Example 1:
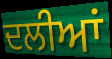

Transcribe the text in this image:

ਦਲੀਆਂ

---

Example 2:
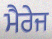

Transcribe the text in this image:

ਮੈਰੇਜ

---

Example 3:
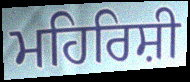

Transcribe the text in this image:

ਮਹਿਰਿਸ਼ੀ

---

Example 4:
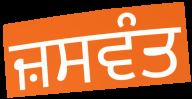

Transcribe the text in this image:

ਜ਼ਸਵੰਤ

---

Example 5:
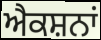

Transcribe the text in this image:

ਐਕਸ਼ਨਾਂ